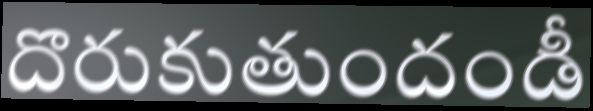
దొరుకుతుందండీ